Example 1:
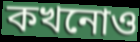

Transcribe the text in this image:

কখনোও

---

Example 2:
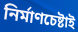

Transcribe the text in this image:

নির্মাণচেষ্টাই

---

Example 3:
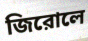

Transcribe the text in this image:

জিরোলে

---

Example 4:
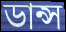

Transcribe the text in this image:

ডান্স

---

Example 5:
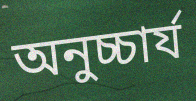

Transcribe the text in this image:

অনুচ্চার্য